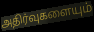
அதிர்வுகளையும்